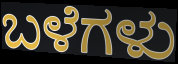
ಬಳೆಗಳು